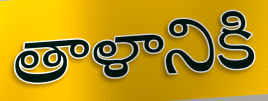
తాళానికి